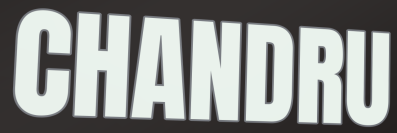
CHANDRU